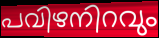
പവിഴനിറവും